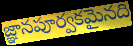
జ్ఞానపూర్వకమైనది